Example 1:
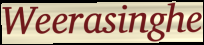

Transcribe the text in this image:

Weerasinghe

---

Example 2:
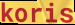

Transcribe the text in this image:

koris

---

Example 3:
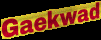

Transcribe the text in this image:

Gaekwad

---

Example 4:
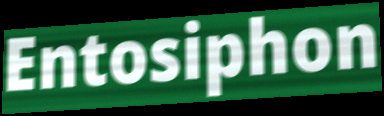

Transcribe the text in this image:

Entosiphon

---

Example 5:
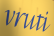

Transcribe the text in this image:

vruti